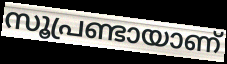
സൂപ്രണ്ടായാണ്